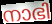
നാഭി